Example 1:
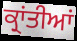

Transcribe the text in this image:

ਕ੍ਰਾਂਤੀਆਂ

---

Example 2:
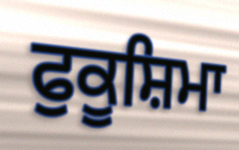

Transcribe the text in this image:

ਫੁਕੂਸ਼ਿਮਾ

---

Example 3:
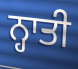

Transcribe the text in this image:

ਨ੍ਹਾਤੀ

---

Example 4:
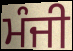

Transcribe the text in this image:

ਮੰਜੀ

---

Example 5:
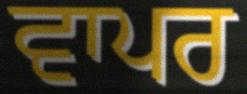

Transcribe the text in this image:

ਵਾਪਰ